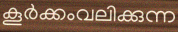
കൂർക്കംവലിക്കുന്ന